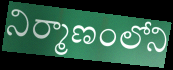
నిర్మాణంలోని